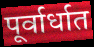
पूर्वार्धात